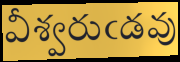
వీశ్వరుఁడవు